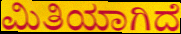
ಮಿತಿಯಾಗಿದೆ